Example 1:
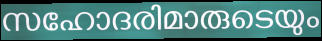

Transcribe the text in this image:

സഹോദരിമാരുടെയും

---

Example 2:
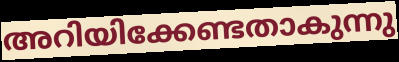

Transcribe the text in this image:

അറിയിക്കേണ്ടതാകുന്നു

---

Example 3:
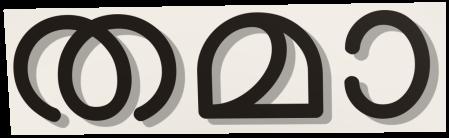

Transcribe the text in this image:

തമാ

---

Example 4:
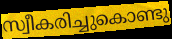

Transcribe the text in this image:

സ്വീകരിച്ചുകൊണ്ടു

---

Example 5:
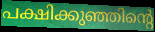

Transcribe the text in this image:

പക്ഷിക്കുഞ്ഞിന്റെ